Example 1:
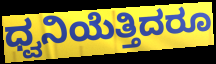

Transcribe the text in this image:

ಧ್ವನಿಯೆತ್ತಿದರೂ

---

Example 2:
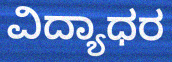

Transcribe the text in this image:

ವಿದ್ಯಾಧರ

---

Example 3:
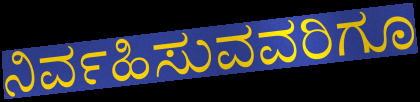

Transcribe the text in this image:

ನಿರ್ವಹಿಸುವವರಿಗೂ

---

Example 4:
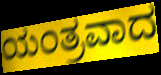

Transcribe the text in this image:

ಯಂತ್ರವಾದ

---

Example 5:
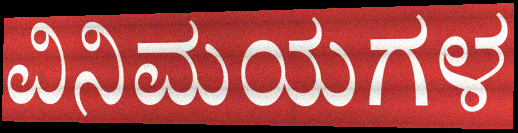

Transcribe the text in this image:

ವಿನಿಮಯಗಳ